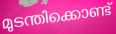
മുടന്തിക്കൊണ്ട്